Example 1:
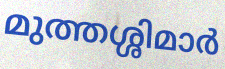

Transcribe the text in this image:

മുത്തശ്ശിമാർ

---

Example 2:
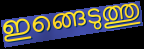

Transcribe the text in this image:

ഇങ്ങെടുത്തു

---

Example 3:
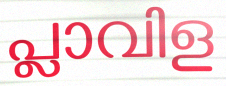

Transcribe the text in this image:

പ്ലാവിള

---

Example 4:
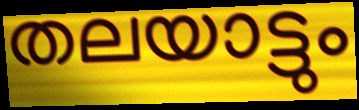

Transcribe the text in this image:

തലയാട്ടും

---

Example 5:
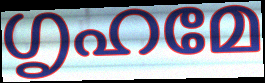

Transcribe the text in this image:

ഗൃഹമേ